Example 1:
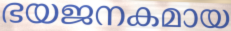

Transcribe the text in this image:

ഭയജനകമായ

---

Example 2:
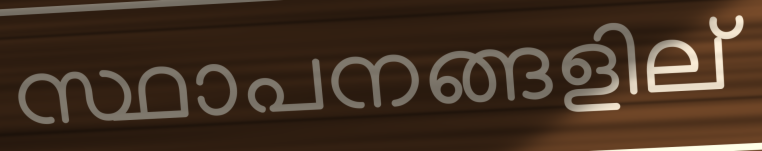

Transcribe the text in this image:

സ്ഥാപനങ്ങളില്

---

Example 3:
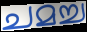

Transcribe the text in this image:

ചമച്ച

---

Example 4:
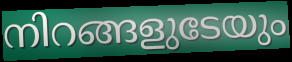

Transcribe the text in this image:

നിറങ്ങളുടേയും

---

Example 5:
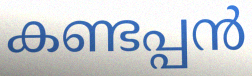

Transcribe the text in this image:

കണ്ടപ്പൻ